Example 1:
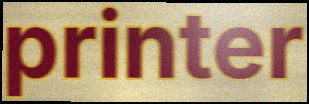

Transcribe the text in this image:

printer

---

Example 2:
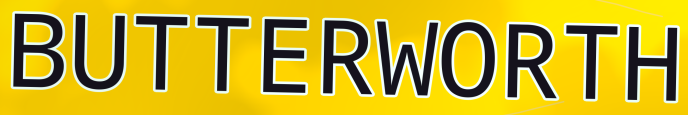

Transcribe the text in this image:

BUTTERWORTH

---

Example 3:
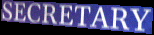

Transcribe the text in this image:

SECRETARY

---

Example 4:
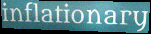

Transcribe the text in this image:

inflationary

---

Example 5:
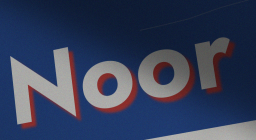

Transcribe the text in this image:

Noor